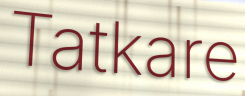
Tatkare